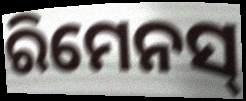
ରିମେନସ୍